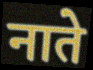
नाते